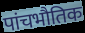
पांचभौतिक